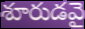
శూరుడవై